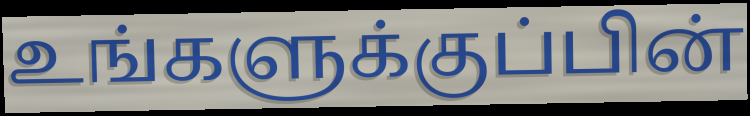
உங்களுக்குப்பின்